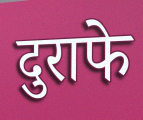
दुराफे